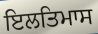
ਇਲਤਿਮਾਸ